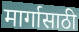
मार्गासाठी